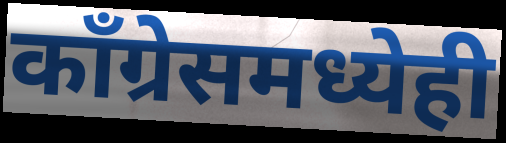
काँग्रेसमध्येही